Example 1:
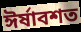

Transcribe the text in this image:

ঈর্ষাবশত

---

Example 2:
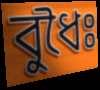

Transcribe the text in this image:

বুধৈঃ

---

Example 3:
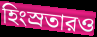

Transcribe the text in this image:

হিংস্রতারও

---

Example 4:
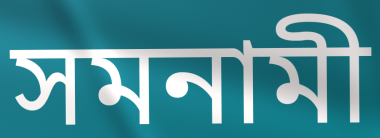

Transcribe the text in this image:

সমনামী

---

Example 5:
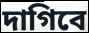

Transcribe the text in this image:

দাগিবে